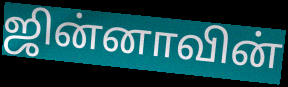
ஜின்னாவின்